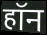
हॉन